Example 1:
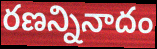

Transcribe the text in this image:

రణన్నినాదం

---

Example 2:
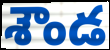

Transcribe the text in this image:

శౌండ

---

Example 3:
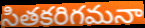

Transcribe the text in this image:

సితకరిగమనా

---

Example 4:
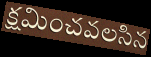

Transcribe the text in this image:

క్షమించవలసిన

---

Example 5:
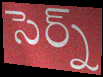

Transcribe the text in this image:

సెర్న్